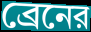
ব্রেনের